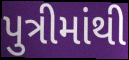
પુત્રીમાંથી